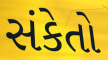
સંકેતો